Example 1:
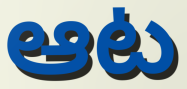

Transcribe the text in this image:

ఆట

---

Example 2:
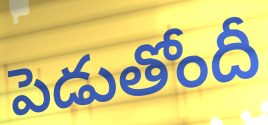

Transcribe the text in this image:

పెడుతోందీ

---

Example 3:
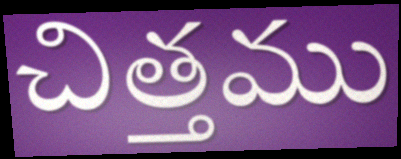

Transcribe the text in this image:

చిత్తము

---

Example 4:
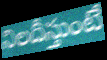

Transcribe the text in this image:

నిలదీస్తుంటే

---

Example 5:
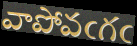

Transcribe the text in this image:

వాపోవఁగఁ